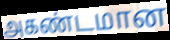
அகண்டமான